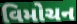
વિમોચન